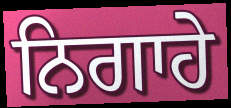
ਨਿਗਾਹੇ